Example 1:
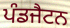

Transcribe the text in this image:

ਪੰਡਜੈਟਨ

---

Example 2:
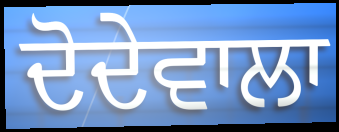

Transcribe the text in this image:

ਦੋਦੇਵਾਲਾ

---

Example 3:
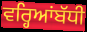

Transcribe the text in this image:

ਵਰ੍ਹਿਆਂਬੱਧੀ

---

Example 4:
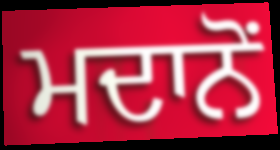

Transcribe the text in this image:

ਮਦਾਨੋਂ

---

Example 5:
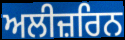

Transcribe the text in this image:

ਅਲੀਜ਼ਰਿਨ